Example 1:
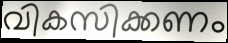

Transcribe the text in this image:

വികസിക്കണം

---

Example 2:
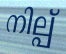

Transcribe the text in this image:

നില്പ്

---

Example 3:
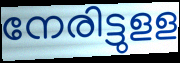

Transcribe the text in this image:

നേരിട്ടുളള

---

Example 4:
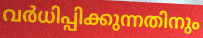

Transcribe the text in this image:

വർധിപ്പിക്കുന്നതിനും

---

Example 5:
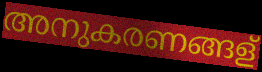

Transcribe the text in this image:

അനുകരണങ്ങള്